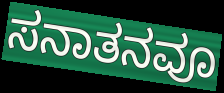
ಸನಾತನವೂ